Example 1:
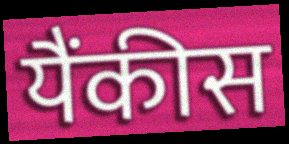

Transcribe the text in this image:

यैंकीस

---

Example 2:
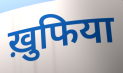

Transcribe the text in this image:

ख़ुफिया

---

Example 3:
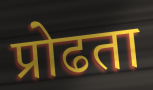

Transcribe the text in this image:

प्रोढता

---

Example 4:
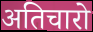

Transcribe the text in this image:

अतिचारो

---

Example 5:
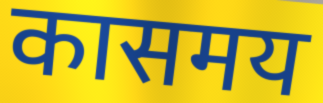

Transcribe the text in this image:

कासमय